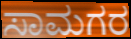
ಸಾಮಗರ